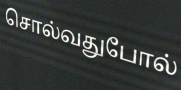
சொல்வதுபோல்